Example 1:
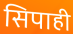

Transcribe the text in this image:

सिपाही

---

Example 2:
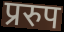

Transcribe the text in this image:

प्ररुप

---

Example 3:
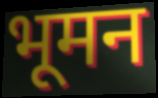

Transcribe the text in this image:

भूमन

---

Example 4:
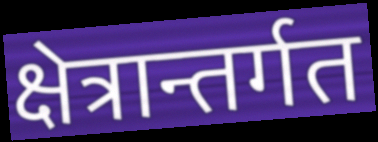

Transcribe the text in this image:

क्षेत्रान्‍तर्गत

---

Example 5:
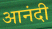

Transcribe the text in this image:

आनंदी